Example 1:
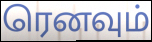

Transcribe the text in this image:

ரெனவும்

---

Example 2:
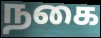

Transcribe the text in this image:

நகை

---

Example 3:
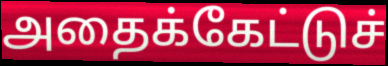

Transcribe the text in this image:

அதைக்கேட்டுச்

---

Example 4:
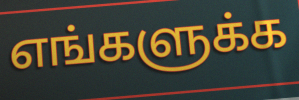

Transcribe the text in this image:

எங்களுக்க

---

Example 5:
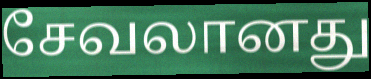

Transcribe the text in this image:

சேவலானது